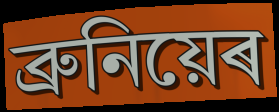
ব্ৰুনিয়েৰ